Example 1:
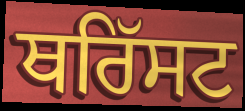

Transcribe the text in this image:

ਥਰਿੱਸਟ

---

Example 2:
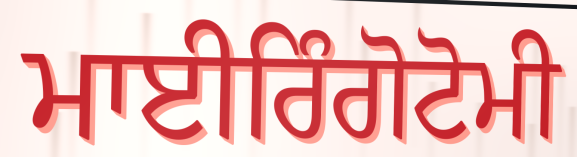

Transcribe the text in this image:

ਮਾਈਰਿੰਗੋਟੋਮੀ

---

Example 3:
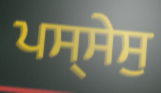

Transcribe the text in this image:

ਪਸ੍ਸੇਸੁ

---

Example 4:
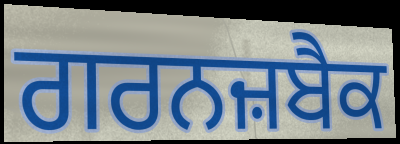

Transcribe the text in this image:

ਗਰਨਜ਼ਬੈਕ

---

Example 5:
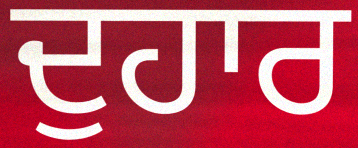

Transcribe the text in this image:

ਦੁਹਾਰ